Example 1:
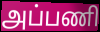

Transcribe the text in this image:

அப்பணி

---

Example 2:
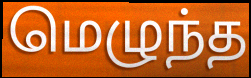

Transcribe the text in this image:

மெழுந்த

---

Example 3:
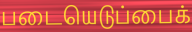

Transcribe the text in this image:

படையெடுப்பைக்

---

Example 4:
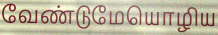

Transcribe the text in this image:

வேண்டுமேயொழிய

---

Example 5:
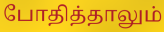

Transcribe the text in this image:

போதித்தாலும்